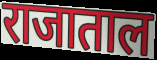
राजाताल